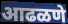
आढळणे